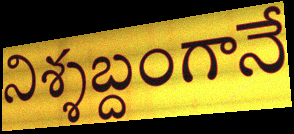
నిశ్శబ్దంగానే